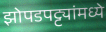
झोपडपट्ट्यांमध्ये